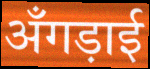
अँगड़ाई